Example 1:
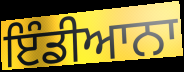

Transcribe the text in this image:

ਇੰਡੀਆਨਾ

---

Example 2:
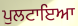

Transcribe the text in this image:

ਪੁਲਟਾਇਆ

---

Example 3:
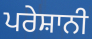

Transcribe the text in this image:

ਪਰੇਸ਼ਾਨੀ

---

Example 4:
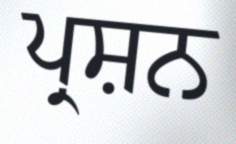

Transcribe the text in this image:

ਪ੍ਰਸ਼ਨ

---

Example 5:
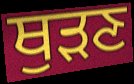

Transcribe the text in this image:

ਥੁੜਣ